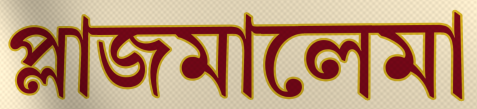
প্লাজমালেমা